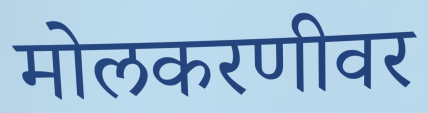
मोलकरणीवर